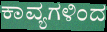
ಕಾವ್ಯಗಳಿಂದ